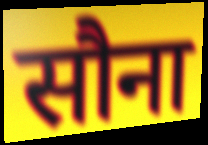
सौना